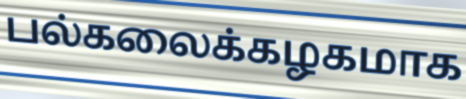
பல்கலைக்கழகமாக